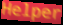
Helper